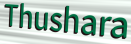
Thushara